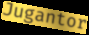
Jugantor